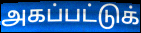
அகப்பட்டுக்